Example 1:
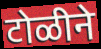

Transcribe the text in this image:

टोळीने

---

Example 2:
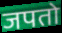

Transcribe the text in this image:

जपतो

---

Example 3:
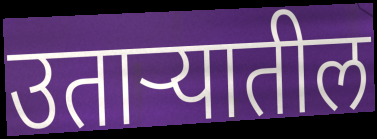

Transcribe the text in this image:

उताऱ्यातील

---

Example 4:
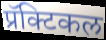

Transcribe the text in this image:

प्रॅक्टिकल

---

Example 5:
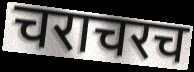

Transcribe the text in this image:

चराचरच